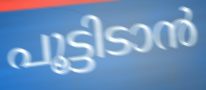
പൂട്ടിടാൻ